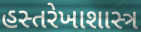
હસ્તરેખાશાસ્ત્ર